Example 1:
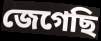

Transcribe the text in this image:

জেগেছি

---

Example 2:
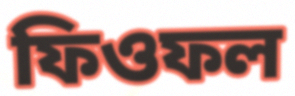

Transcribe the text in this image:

ফিওফল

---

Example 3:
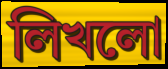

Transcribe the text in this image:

লিখলো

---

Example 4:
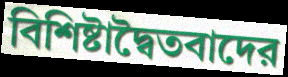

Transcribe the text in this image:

বিশিষ্টাদ্বৈতবাদের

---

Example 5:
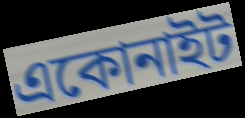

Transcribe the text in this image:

একোনাইট